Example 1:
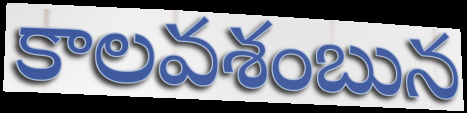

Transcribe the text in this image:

కాలవశంబున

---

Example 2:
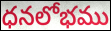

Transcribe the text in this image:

ధనలోభము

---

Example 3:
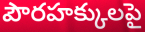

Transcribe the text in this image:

పౌరహక్కులపై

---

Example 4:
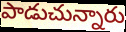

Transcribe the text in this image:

పాడుచున్నారు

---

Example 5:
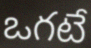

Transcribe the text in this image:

ఒగటే